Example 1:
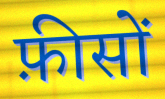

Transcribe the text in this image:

फ़ीसों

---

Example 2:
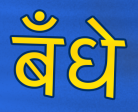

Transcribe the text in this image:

बँधे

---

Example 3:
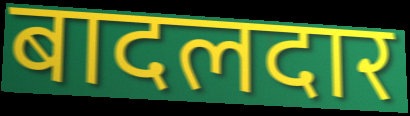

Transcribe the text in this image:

बादलदार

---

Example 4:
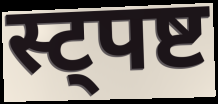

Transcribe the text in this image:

स्ट्पष्ट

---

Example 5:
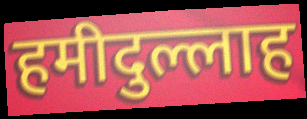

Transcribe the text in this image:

हमीदुल्लाह